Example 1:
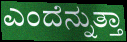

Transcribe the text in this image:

ಎಂದೆನ್ನುತ್ತಾ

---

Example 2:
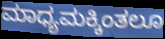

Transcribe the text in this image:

ಮಾಧ್ಯಮಕ್ಕಿಂತಲೂ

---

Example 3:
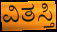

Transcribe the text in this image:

ವಿತಸ್ತಿ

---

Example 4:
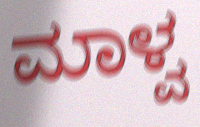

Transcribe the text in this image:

ಮಾಳ್ವ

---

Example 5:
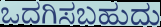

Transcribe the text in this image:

ಒದಗಿಸಬಹುದು